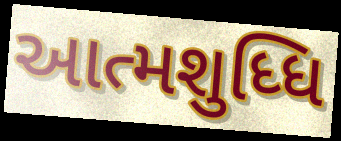
આત્મશુધ્ધિ